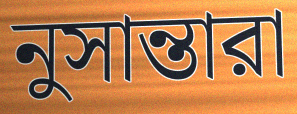
নুসান্তারা